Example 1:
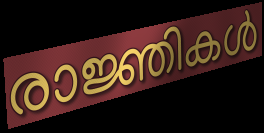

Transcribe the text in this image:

രാജ്ഞികൾ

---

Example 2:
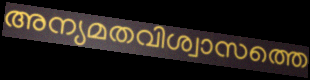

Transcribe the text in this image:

അന്യമതവിശ്വാസത്തെ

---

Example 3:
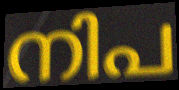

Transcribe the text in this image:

നിപ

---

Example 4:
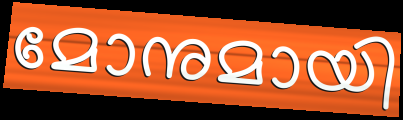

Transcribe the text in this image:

മോനുമായി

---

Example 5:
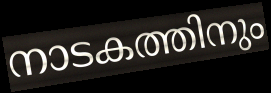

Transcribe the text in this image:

നാടകത്തിനും